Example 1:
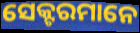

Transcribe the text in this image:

ସେକ୍ଟରମାନେ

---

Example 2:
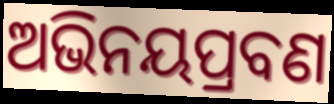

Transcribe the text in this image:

ଅଭିନୟପ୍ରବଣ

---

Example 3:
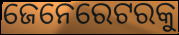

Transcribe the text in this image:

ଜେନେରେଟରକୁ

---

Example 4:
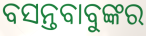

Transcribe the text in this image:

ବସନ୍ତବାବୁଙ୍କର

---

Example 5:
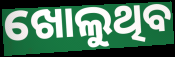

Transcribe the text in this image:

ଖୋଲୁଥିବ